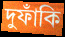
দুফাঁকি